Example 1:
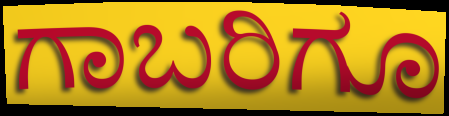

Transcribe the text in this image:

ಗಾಬರಿಗೂ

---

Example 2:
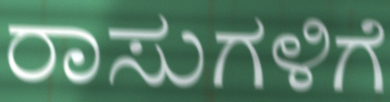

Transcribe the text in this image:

ರಾಸುಗಳಿಗೆ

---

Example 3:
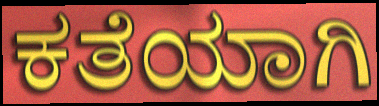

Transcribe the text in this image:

ಕತೆಯಾಗಿ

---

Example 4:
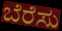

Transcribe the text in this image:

ಬೆರೆಸು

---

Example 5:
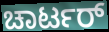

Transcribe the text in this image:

ಚಾರ್ಟರ್